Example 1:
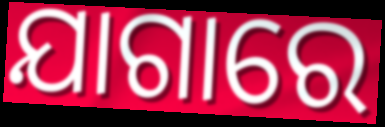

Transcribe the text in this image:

ଯାଗାରେ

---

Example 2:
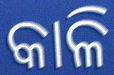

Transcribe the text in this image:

କାଳି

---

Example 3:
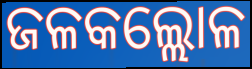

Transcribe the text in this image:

ଜଳକଲ୍ଲୋଳ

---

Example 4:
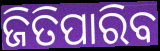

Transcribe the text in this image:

ଜିତିପାରିବ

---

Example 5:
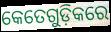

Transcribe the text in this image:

କେତେଗୁଡ଼ିକରେ